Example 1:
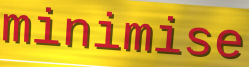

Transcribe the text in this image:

minimise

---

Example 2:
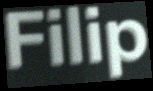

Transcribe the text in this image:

Filip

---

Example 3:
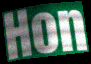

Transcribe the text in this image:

Hon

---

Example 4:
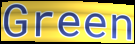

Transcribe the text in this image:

Green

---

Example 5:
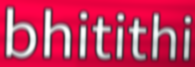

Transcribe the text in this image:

bhitithi